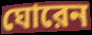
ঘোরেন